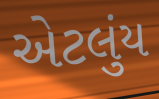
એટલુંય